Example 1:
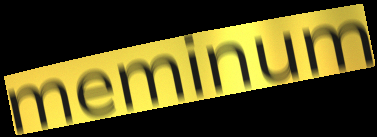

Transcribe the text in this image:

meminum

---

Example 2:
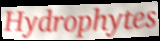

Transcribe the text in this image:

Hydrophytes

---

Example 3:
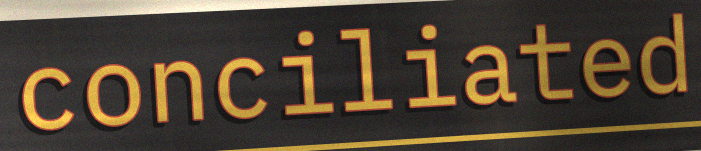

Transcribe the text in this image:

conciliated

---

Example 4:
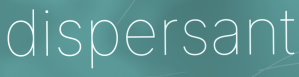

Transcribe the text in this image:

dispersant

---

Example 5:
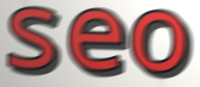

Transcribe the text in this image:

seo